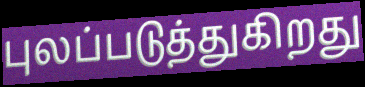
புலப்படுத்துகிறது